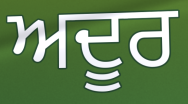
ਅਦੂਰ